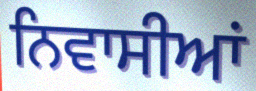
ਨਿਵਾਸੀਆਂ